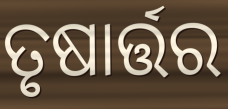
ତୃଷାର୍ତ୍ତର